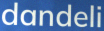
dandeli